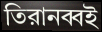
তিরানব্বই